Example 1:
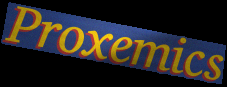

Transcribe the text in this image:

Proxemics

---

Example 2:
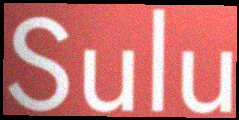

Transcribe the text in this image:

Sulu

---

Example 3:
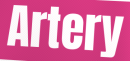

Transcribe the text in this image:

Artery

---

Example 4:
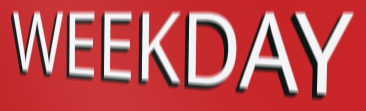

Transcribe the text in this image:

WEEKDAY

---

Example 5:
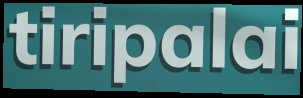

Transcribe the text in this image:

tiripalai